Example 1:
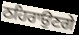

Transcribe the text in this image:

ਠਹਿਰਾਉਣਗੇ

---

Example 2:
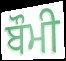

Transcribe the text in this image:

ਬੌਮੀ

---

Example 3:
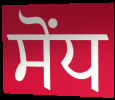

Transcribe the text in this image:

ਸੋਂਧ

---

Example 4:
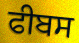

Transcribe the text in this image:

ਫੀਬਸ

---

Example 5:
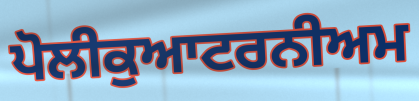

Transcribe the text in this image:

ਪੋਲੀਕੁਆਟਰਨੀਅਮ